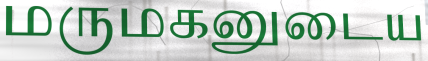
மருமகனுடைய